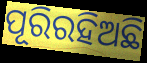
ପୂରିରହିଅଛି